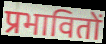
प्रभावितों